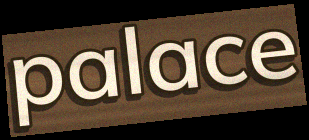
palace